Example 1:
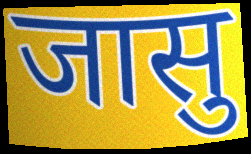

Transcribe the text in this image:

जासु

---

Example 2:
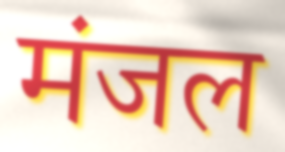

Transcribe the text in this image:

मंजल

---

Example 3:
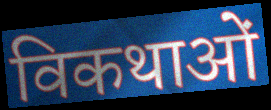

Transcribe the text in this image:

विकथाओं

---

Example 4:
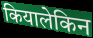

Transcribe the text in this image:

कियालेकिन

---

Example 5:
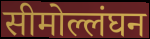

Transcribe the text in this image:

सीमोल्लंघन